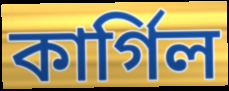
কার্গিল